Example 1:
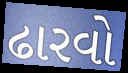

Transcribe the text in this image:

ઢારવો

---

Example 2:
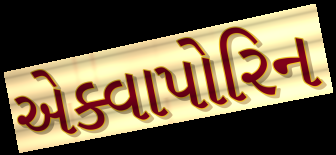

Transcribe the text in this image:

એક્વાપોરિન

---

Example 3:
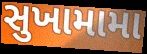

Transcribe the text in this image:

સુખામામા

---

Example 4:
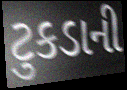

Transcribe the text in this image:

ટુકડાની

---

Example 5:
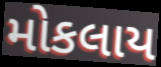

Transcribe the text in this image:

મોકલાય